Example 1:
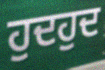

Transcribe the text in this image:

ਹੁਦਹੁਦ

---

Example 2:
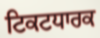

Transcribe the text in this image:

ਟਿਕਟਧਾਰਕ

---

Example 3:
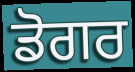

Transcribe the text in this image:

ਡੋਗਰ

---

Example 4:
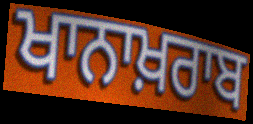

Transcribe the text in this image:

ਖਾਨਾਖ਼ਰਾਬ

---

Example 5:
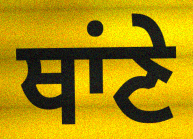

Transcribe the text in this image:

ਥਾਂਣੇ